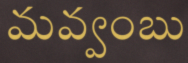
మవ్వంబు